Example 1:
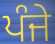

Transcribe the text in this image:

ਪੰਜੇ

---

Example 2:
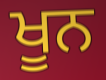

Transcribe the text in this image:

ਖੂਨ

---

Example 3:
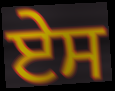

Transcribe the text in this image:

ਏਸ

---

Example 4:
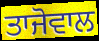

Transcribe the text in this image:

ਤਾਜੋਵਾਲ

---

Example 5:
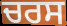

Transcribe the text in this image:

ਚਰਸ